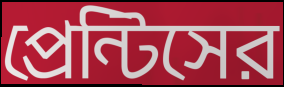
প্রেন্টিসের